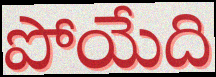
పోయేది